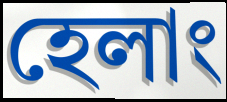
হেলাং